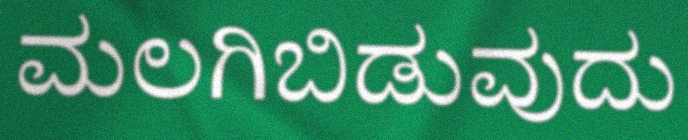
ಮಲಗಿಬಿಡುವುದು